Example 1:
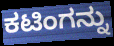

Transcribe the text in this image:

ಕಟಿಂಗನ್ನು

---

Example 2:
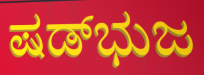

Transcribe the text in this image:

ಷಡ್‌ಭುಜ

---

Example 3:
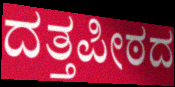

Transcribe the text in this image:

ದತ್ತಪೀಠದ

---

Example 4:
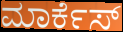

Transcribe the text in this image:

ಮಾರ್ಕೆಸ್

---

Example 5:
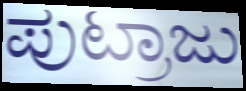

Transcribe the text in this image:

ಪುಟ್ರಾಜು